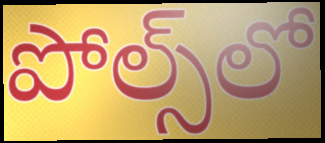
పోల్స్‌లో